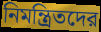
নিমন্ত্রিতদের